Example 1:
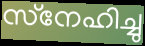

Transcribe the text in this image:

സ്‌നേഹിച്ചു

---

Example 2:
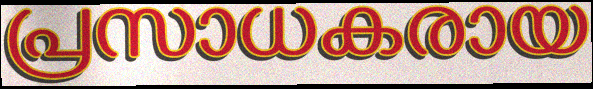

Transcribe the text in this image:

പ്രസാധകരായ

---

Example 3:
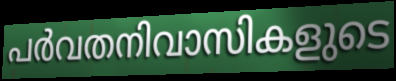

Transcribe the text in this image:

പർവതനിവാസികളുടെ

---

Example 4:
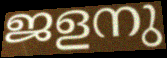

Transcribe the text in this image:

ജളനു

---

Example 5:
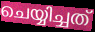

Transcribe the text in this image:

ചെയ്യിച്ചത്